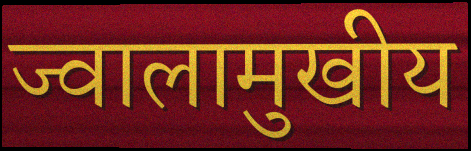
ज्वालामुखीय